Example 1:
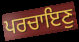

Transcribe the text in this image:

ਪਰਚਾਇਣੁ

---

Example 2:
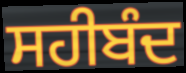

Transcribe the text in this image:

ਸਹੀਬੰਦ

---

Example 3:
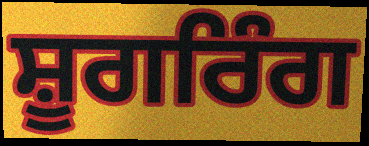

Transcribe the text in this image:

ਸ਼ੂਗਰਿੰਗ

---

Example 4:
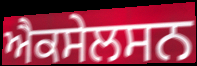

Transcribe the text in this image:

ਐਕਸੇਲਸਨ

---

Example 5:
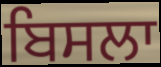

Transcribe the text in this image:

ਬਿਸਲਾ